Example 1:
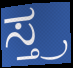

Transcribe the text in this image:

ಸ್ತ್ರ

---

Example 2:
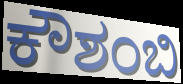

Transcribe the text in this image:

ಕೌಶಂಬಿ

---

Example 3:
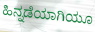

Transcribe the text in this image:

ಹಿನ್ನಡೆಯಾಗಿಯೂ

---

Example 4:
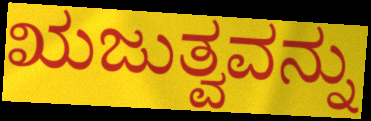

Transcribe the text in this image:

ಋಜುತ್ವವನ್ನು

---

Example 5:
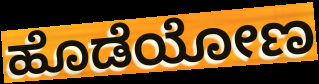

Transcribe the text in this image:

ಹೊಡೆಯೋಣ